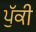
ਪੁੱਕੀ